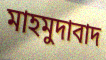
মাহমুদাবাদ